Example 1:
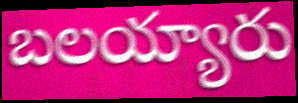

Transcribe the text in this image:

బలయ్యారు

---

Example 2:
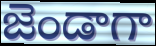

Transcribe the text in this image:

జెండాగా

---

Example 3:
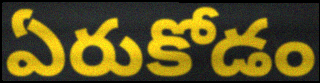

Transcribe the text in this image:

ఏరుకోడం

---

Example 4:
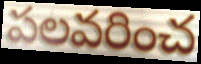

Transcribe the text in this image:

పలవరించ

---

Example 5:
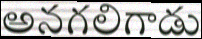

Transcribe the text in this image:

అనగలిగాడు